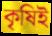
কৃষিই